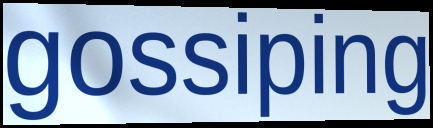
gossiping